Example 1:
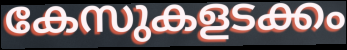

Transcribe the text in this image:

കേസുകളടക്കം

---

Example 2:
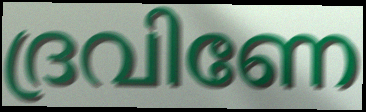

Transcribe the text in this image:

ദ്രവിണേ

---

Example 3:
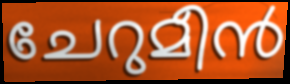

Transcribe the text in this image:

ചേറുമീൻ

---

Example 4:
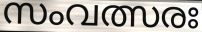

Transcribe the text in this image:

സംവത്സരഃ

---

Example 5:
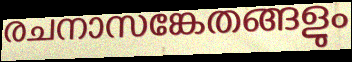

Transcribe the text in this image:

രചനാസങ്കേതങ്ങളും